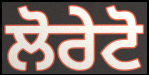
ਲੋਰੇਟੋ